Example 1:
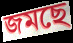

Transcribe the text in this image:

জমছে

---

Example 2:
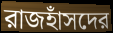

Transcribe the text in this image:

রাজহাঁসদের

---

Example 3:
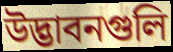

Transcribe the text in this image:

উদ্ভাবনগুলি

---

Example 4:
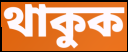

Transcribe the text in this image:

থাকুক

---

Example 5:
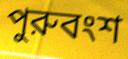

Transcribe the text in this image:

পুরুবংশ